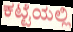
ಕಟ್ಟೆಯಲ್ಲಿ